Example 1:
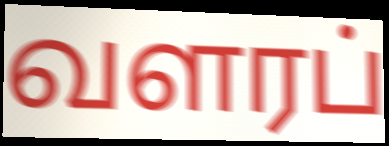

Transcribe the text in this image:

வளரப்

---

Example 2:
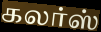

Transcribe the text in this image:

கலர்ஸ்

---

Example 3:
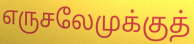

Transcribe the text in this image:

எருசலேமுக்குத்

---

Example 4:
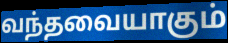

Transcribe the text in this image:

வந்தவையாகும்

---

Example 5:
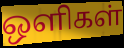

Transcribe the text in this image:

ஒளிகள்